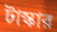
টাস্কার